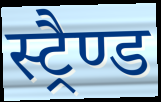
स्ट्रैण्ड